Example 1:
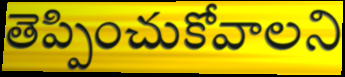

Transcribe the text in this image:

తెప్పించుకోవాలని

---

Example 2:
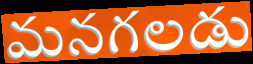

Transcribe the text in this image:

మనగలడు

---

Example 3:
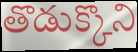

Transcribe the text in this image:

తొడుక్కొని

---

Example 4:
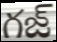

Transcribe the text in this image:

గజ్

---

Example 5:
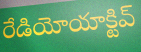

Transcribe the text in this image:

రేడియోయాక్టివ్